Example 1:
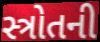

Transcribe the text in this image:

સ્ત્રોતની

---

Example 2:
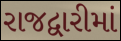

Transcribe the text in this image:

રાજદ્વારીમાં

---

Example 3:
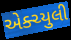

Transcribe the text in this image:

એક્ચ્યુલી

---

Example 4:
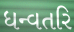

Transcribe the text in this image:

ધન્વતરિ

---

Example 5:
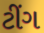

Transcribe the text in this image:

ટીંગ